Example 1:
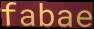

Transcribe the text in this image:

fabae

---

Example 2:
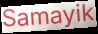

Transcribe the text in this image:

Samayik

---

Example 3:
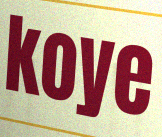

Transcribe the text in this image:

koye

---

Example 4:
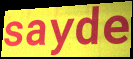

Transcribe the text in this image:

sayde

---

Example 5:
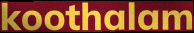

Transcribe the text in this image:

koothalam